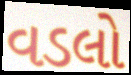
વડલો